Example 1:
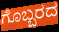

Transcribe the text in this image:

ಗೊಬ್ಬರದ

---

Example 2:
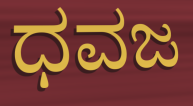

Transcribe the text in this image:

ಧವಜ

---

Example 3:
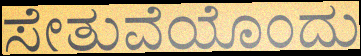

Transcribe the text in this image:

ಸೇತುವೆಯೊಂದು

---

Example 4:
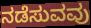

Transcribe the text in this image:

ನಡೆಸುವವು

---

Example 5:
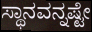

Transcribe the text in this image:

ಸ್ಥಾನವನ್ನಷ್ಟೇ